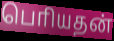
பெரியதன்